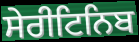
ਸੇਰੀਟਿਨਿਬ